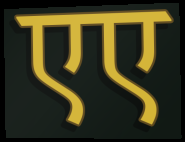
एए